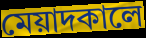
মেয়াদকালে